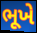
ભૂખે